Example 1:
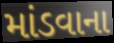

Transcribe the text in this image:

માંડવાના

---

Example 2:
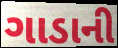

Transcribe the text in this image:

ગાડાની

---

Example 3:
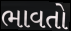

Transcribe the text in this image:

ભાવતો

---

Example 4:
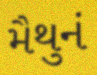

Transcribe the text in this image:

મૈથુનં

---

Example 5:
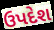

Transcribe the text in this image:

ઉપદેશ